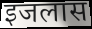
इजलास